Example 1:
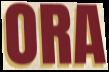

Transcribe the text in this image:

ORA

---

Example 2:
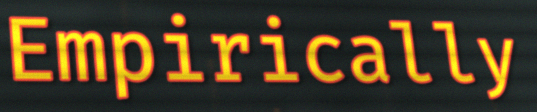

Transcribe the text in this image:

Empirically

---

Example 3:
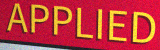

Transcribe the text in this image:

APPLIED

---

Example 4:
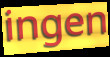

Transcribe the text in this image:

ingen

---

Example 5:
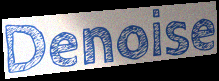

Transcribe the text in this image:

Denoise